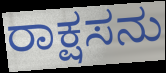
ರಾಕ್ಷಸನು